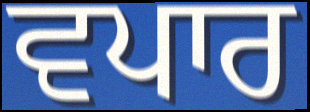
ਵਪਾਰ